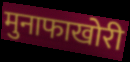
मुनाफाखोरी